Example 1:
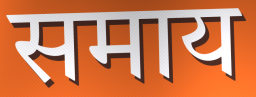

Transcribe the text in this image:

समाय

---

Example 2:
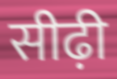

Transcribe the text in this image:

सीढ़ी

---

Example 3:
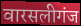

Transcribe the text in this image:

वारसलीगंज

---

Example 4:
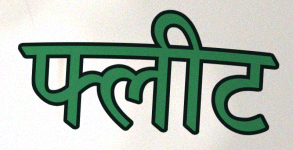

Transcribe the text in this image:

फ्लीट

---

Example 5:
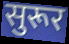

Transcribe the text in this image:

सुरूर